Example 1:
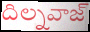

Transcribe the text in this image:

దిల్నవాజ్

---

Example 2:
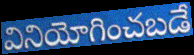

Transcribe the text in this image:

వినియోగించబడే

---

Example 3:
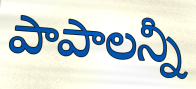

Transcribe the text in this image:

పాపాలన్నీ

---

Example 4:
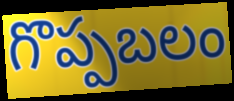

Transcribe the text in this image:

గొప్పబలం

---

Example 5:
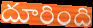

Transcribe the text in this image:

దూరింది